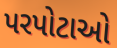
પરપોટાઓ